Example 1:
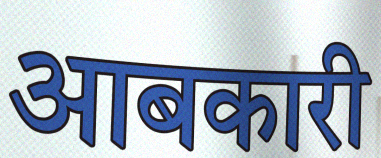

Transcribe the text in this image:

आबकारी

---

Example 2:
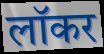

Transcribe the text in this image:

लॉकर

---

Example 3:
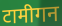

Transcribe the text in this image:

टामीगन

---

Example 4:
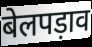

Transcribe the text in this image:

बेलपड़ाव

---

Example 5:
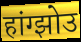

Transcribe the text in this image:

हांग्झोउ